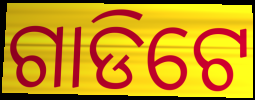
ଗାଡିଟେ